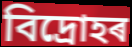
বিদ্ৰোহৰ